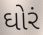
ઘોરં